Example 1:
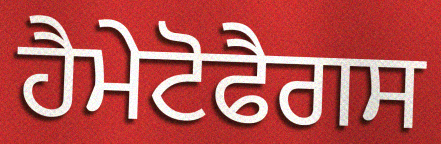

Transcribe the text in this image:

ਹੈਮੇਟੋਫੈਗਸ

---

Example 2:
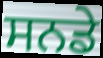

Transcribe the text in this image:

ਸਨਡੇ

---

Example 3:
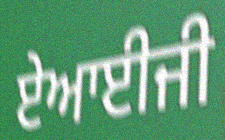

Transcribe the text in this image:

ਏਆਈਜੀ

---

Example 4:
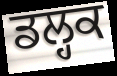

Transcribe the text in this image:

ਡਲ੍ਹਕ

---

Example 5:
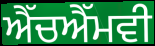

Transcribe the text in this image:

ਐੱਚਐੱਮਵੀ